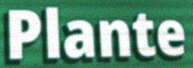
Plante